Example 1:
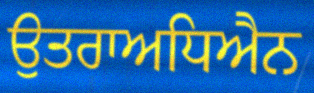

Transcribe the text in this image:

ਉਤਰਾਅਧਿਐਨ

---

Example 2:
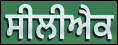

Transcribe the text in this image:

ਸੀਲੀਐਕ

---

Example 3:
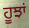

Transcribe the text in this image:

ਹੂਝਾਂ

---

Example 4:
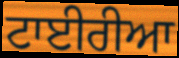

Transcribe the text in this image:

ਟਾਈਰੀਆ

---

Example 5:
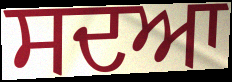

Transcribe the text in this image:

ਸਦਆ